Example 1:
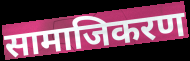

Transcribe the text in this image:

सामाजिकरण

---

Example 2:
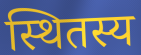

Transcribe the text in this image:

स्थितस्य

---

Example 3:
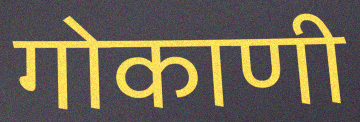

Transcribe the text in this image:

गोकाणी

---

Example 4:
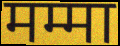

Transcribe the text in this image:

मम्मा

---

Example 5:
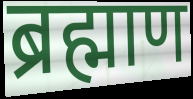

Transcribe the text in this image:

ब्रह्माण